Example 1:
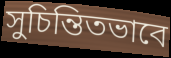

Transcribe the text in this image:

সুচিন্তিতভাবে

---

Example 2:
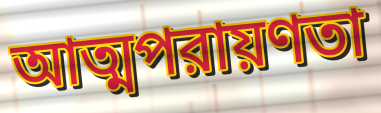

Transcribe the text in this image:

আত্মপরায়ণতা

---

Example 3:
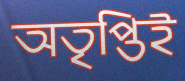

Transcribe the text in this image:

অতৃপ্তিই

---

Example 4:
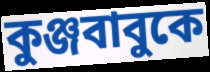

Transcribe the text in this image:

কুঞ্জবাবুকে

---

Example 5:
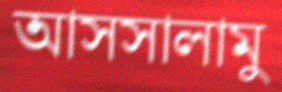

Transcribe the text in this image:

আসসালামু